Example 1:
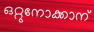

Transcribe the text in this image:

ഒറ്റുനോക്കാന്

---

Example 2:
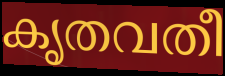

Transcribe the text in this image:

കൃതവതീ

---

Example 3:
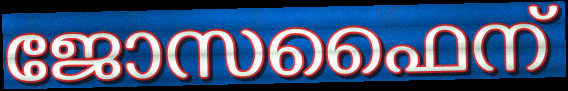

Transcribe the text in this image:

ജോസഫൈന്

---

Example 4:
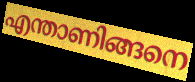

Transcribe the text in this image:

എന്താണിങ്ങനെ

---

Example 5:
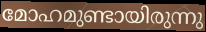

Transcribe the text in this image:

മോഹമുണ്ടായിരുന്നു